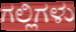
ಗಲ್ಲಿಗಳು